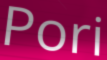
Pori